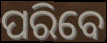
ପରିବେ